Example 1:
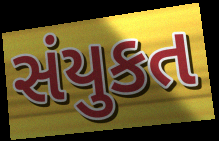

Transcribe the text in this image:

સંયુકત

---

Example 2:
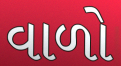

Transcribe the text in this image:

વાળો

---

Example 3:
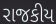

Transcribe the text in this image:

રાજકીય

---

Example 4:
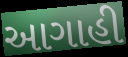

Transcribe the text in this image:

આગાહી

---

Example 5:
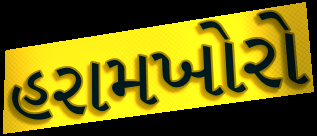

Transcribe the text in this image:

હરામખોરો